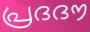
പ്രദദൗ